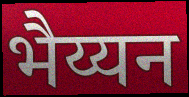
भैय्यन